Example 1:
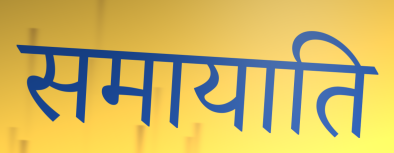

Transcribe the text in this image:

समायाति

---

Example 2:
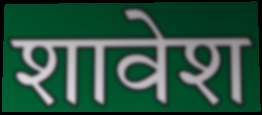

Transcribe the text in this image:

शावेश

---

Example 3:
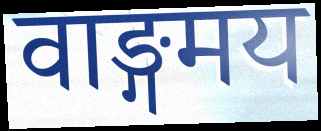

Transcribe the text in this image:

वाङ्गमय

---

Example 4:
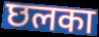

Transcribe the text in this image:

छलका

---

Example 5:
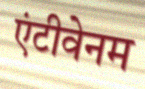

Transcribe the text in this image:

एंटीवेनम